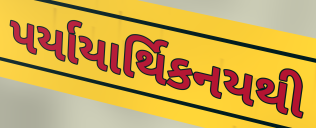
પર્યાયાર્થિકનયથી